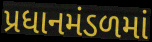
પ્રધાનમંડળમાં